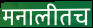
मनालीतच